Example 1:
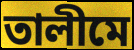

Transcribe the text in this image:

তালীমে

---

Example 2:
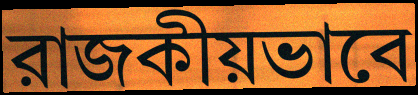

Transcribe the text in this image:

রাজকীয়ভাবে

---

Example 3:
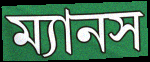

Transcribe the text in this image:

ম্যানস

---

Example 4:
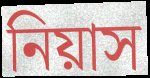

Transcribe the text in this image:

নিয়াস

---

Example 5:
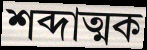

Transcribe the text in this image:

শব্দাত্মক